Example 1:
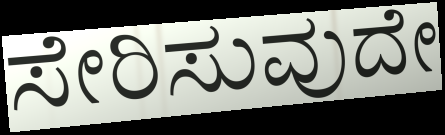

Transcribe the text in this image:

ಸೇರಿಸುವುದೇ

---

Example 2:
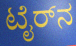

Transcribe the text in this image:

ಟೈರ್‌ನ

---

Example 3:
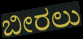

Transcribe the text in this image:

ಬೀರಲು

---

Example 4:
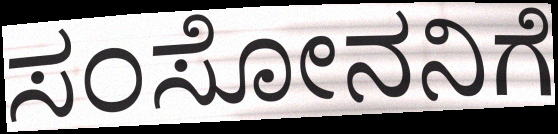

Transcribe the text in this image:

ಸಂಸೋನನಿಗೆ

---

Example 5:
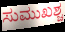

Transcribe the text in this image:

ಸುಮುಖಶ್ಚ